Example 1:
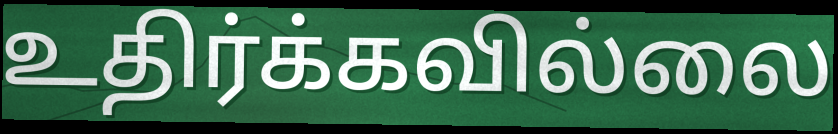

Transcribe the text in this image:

உதிர்க்கவில்லை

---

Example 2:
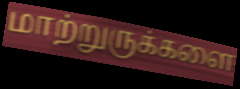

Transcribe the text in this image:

மாற்றுருக்களை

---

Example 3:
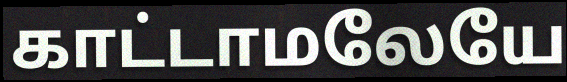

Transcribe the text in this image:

காட்டாமலேயே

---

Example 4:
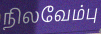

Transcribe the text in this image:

நிலவேம்பு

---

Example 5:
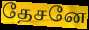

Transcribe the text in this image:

தேசனே